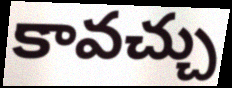
కావచ్చు